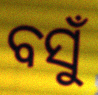
ବସୁଁ